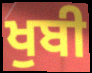
ਖੁਬੀ